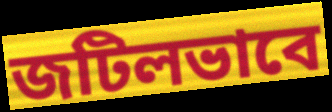
জটিলভাবে